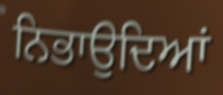
ਨਿਭਾਉਦਿਆਂ